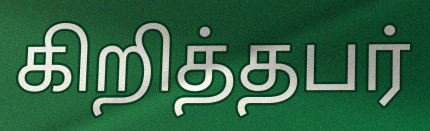
கிறித்தபர்